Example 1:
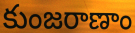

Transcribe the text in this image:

కుంజరాణాం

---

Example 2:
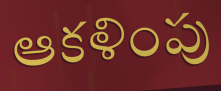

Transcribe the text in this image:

ఆకళింపు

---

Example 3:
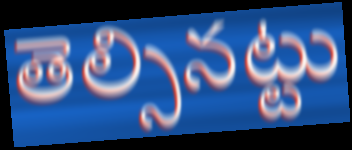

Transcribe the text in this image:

తెల్సినట్టు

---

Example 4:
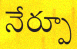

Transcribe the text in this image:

నేర్పూ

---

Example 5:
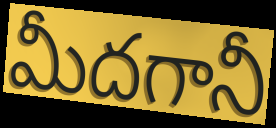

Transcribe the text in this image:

మీదగానీ